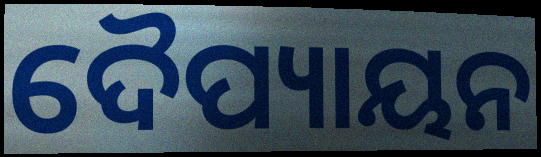
ଦୈପ୍ୟାୟନ